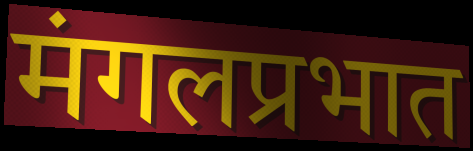
मंगलप्रभात